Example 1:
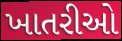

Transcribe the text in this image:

ખાતરીઓ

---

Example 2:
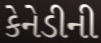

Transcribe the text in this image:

કેનેડીની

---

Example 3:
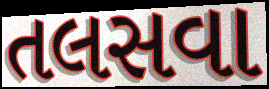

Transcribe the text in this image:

તલસવા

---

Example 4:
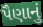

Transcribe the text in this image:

પૈણાનું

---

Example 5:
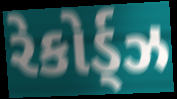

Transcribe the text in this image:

રેકોર્ડ્ઝ